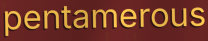
pentamerous